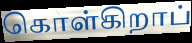
கொள்கிறாப்